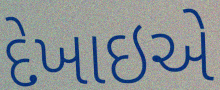
દેખાઇએ